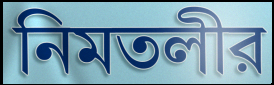
নিমতলীর